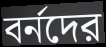
বর্নদের